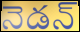
నెడన్